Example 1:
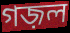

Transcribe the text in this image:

গজ়ল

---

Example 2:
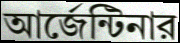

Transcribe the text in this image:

আর্জেন্টিনার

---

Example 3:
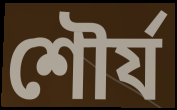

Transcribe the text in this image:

শৌর্য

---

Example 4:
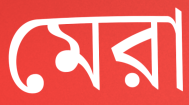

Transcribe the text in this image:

মেরা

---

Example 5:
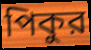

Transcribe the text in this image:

পিকুর